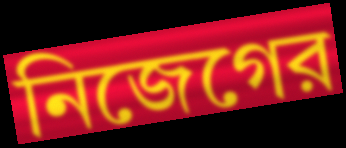
নিজেগের